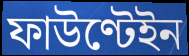
ফাউণ্টেইন